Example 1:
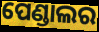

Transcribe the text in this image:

ପେଣ୍ଡାଲର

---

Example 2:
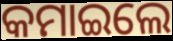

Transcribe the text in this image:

କମାଇଲେ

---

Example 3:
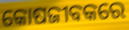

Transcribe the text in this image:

କୋଷଜୀବକରେ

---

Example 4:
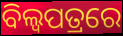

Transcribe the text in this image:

ବିଲ୍ଵପତ୍ରରେ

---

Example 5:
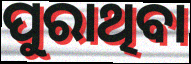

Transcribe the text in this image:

ପୁରାଥିବା